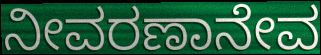
ನೀವರಣಾನೇವ